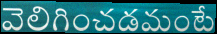
వెలిగించడమంటే